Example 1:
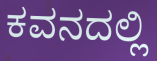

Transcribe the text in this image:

ಕವನದಲ್ಲಿ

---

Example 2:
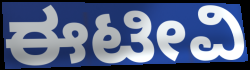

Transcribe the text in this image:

ಈಟೀವಿ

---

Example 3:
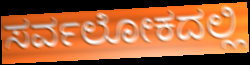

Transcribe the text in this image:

ಸರ್ವಲೋಕದಲ್ಲಿ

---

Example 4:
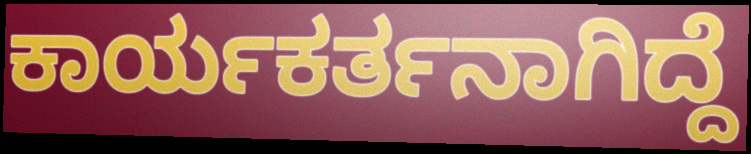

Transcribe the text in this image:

ಕಾರ್ಯಕರ್ತನಾಗಿದ್ದೆ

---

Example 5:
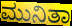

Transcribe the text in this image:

ಮುನಿತಾ